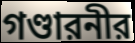
গণ্ডারনীর